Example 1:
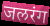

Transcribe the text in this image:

जलरंग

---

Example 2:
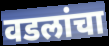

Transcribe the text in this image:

वडलांचा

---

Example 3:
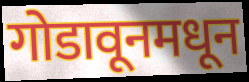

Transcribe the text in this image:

गोडावूनमधून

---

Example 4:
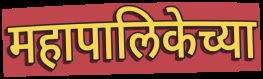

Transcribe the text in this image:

महापालिकेच्या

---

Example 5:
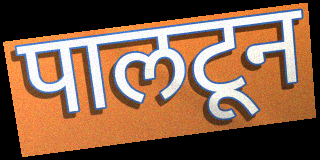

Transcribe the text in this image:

पालटून